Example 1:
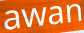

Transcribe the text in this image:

awan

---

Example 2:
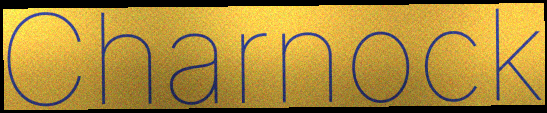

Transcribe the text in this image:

Charnock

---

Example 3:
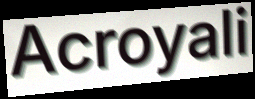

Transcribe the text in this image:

Acroyali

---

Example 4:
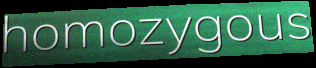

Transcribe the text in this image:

homozygous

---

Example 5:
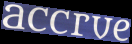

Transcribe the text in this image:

accrue